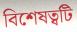
বিশেষত্বটি